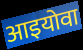
आइयोवा